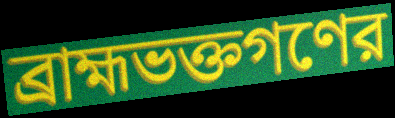
ব্রাহ্মভক্তগণের